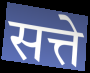
सत्ते